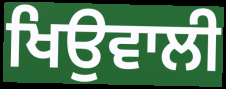
ਖਿਉਵਾਲੀ